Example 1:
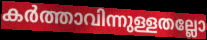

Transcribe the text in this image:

കർത്താവിന്നുള്ളതല്ലോ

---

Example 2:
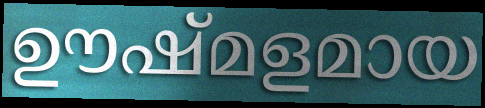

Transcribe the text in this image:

ഊഷ്മളമായ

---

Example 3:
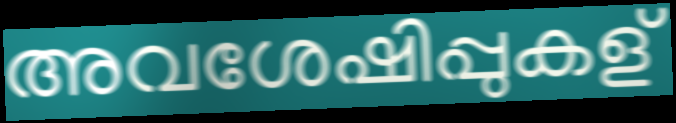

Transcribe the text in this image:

അവശേഷിപ്പുകള്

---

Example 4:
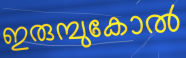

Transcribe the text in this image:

ഇരുമ്പുകോൽ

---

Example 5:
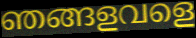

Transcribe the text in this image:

ഞങ്ങളവളെ